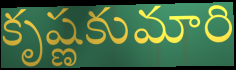
కృష్ణకుమారి